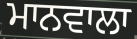
ਮਾਨਵਾਲਾ